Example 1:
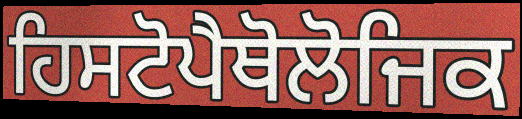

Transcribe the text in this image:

ਹਿਸਟੋਪੈਥੋਲੋਜਿਕ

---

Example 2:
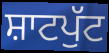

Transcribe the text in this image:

ਸ਼ਾਟਪੁੱਟ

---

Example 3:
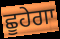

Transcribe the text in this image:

ਛੂਹੇਗਾ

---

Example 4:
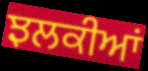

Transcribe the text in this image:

ਝਲਕੀਆਂ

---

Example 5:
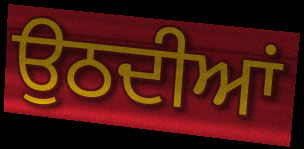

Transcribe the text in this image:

ਉਠਦੀਆਂ